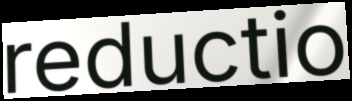
reductio